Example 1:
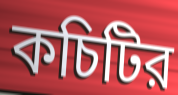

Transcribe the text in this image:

কচিটির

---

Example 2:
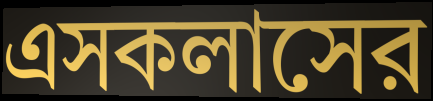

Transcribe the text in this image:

এসকলাসের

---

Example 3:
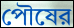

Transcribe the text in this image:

পৌষের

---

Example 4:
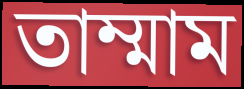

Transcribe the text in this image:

তাম্মাম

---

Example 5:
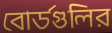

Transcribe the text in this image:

বোর্ডগুলির